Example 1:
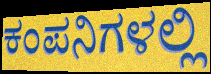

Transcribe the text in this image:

ಕಂಪನಿಗಳಲ್ಲಿ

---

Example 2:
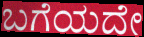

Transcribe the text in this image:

ಬಗೆಯದೇ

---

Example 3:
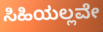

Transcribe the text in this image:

ಸಿಹಿಯಲ್ಲವೇ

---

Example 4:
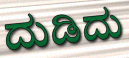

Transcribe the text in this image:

ದುಡಿದು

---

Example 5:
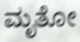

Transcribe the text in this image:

ಮೃತೋ